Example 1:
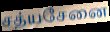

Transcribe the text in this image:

சத்யசேனை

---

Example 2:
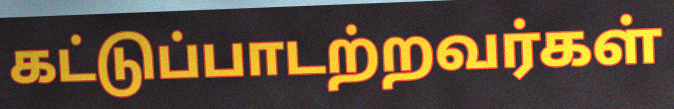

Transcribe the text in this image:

கட்டுப்பாடற்றவர்கள்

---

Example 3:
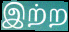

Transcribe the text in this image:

இற்ற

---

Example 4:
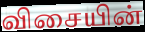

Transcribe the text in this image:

விசையின்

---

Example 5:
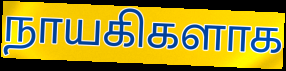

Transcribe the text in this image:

நாயகிகளாக